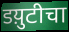
डय़ुटीचा